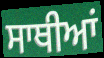
ਸਾਥੀਆਂ